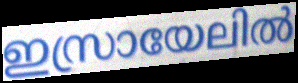
ഇസ്രായേലിൽ